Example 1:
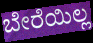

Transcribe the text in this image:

ಬೇರೆಯಿಲ್ಲ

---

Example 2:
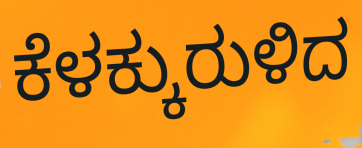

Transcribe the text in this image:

ಕೆಳಕ್ಕುರುಳಿದ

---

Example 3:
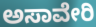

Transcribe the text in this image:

ಅಸಾವೇರಿ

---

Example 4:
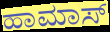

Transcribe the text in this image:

ಹಾಮಾಸ್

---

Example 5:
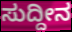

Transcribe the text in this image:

ಸುದ್ದೀನ